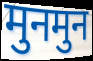
मुनमुन